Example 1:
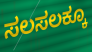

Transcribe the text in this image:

ಸಲಸಲಕ್ಕೂ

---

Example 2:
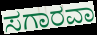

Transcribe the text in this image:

ಸಗಾರವಾ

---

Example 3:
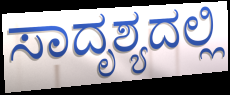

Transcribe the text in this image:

ಸಾದೃಶ್ಯದಲ್ಲಿ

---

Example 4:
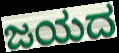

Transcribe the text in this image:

ಜಯದ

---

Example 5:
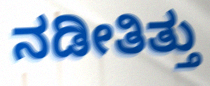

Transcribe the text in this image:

ನಡೀತಿತ್ತು